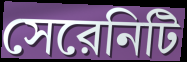
সেরেনিটি